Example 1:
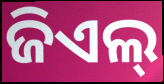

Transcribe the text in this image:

ଜିଏଲ୍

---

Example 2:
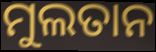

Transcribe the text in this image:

ମୁଲତାନ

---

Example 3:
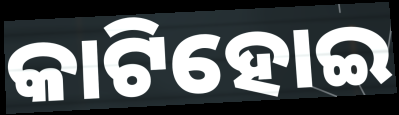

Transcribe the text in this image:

କାଟିହୋଇ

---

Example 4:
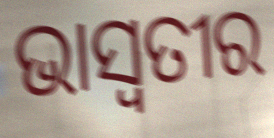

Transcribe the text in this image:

ଭାସ୍ୱତୀର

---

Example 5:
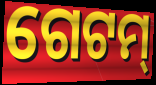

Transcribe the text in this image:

ଗେଟମ୍